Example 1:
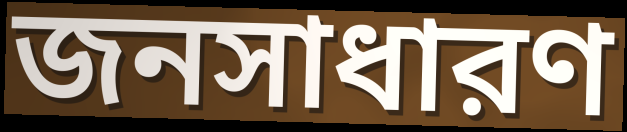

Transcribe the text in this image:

জনসাধারণ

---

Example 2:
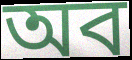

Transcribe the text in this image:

অব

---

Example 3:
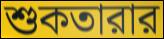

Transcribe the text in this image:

শুকতারার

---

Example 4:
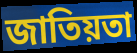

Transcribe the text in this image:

জাতিয়তা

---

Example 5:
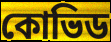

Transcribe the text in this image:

কোভিড